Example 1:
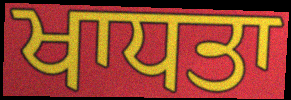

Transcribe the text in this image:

ਖਾਧਤਾ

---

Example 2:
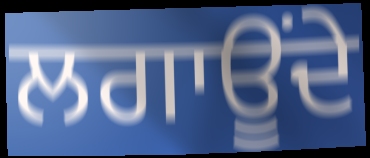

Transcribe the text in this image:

ਲਗਾਊਂਦੇ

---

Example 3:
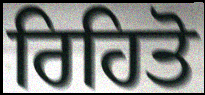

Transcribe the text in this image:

ਰਿਹਿਤੋ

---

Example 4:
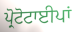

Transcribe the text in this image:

ਪ੍ਰੋਟੋਟਾਈਪਾਂ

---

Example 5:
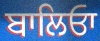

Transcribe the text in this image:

ਬਾਲਿਓਾ